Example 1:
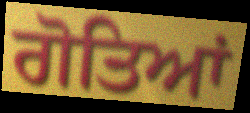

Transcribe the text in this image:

ਗੋਤਿਆਂ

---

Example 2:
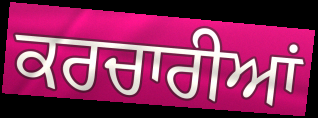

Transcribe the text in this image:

ਕਰਚਾਰੀਆਂ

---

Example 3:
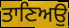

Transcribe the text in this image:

ਤਾਣਿਅਉ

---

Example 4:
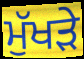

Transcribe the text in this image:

ਮੁੱਖੜੇ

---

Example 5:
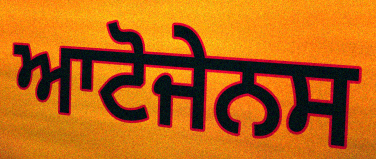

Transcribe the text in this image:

ਆਟੋਜੇਨਸ